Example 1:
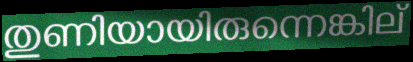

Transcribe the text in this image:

തുണിയായിരുന്നെങ്കില്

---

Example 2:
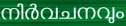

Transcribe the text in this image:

നിർവചനവും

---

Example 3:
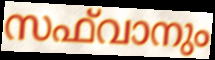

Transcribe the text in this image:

സഫ്‌വാനും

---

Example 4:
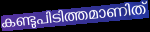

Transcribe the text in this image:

കണ്ടുപിടിത്തമാണിത്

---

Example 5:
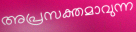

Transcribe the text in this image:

അപ്രസക്തമാവുന്ന